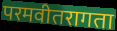
परमवीतरागता